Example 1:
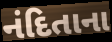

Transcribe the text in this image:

નંદિતાના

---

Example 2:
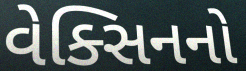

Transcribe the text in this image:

વેક્સિનનો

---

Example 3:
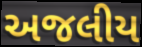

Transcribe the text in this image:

અજલીય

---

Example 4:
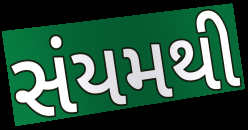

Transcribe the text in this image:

સંયમથી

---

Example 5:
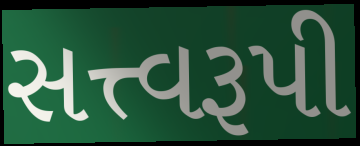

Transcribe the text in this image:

સત્ત્વરૂપી